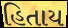
હિતાય